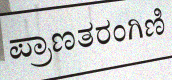
ಪ್ರಾಣತರಂಗಿಣಿ